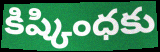
కిష్కింధకు